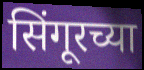
सिंगूरच्या